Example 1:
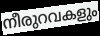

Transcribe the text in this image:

നീരുറവകളും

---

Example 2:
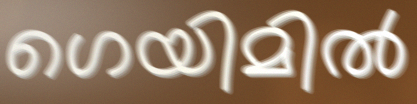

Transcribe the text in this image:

ഗെയിമിൽ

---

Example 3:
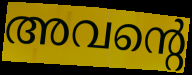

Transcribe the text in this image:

അവന്റെ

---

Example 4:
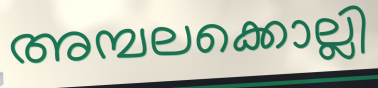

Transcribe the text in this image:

അമ്പലക്കൊല്ലി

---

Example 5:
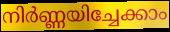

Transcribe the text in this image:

നിർണ്ണയിച്ചേക്കാം